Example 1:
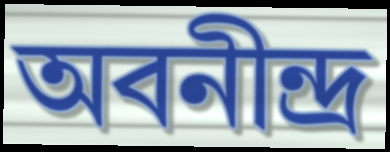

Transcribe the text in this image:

অবনীন্দ্র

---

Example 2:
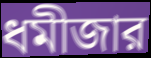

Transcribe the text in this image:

ধমীজার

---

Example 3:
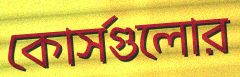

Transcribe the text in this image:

কোর্সগুলোর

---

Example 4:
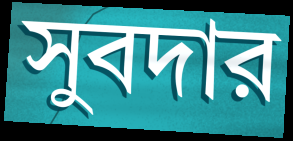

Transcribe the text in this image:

সুবদার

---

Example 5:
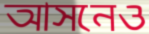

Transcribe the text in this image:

আসনেও